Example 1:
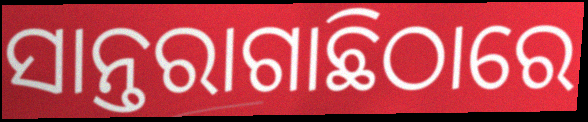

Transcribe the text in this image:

ସାନ୍ତରାଗାଛିଠାରେ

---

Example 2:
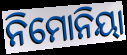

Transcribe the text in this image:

ନିମୋନିୟା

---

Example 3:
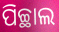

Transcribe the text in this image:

ପିଚ୍ଛାଲ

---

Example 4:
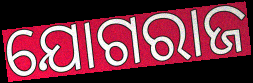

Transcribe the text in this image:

ଯୋଗରାଜ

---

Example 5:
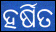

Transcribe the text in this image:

ହର୍ଷିତ